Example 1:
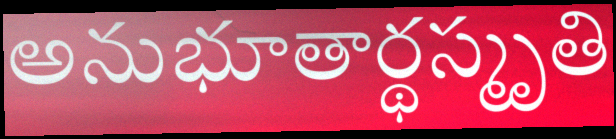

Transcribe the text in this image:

అనుభూతార్థస్మృతి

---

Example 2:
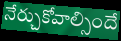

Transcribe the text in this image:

నేర్చుకోవాల్సిందే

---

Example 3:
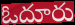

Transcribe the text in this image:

ఓదూరు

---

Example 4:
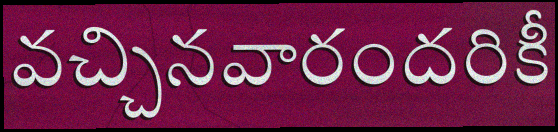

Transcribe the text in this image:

వచ్చినవారందరికీ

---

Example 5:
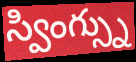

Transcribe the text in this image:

స్వింగ్స్ను